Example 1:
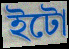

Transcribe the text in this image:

ইটো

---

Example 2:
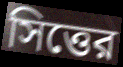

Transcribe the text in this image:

সিত্তের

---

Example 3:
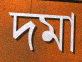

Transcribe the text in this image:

দমা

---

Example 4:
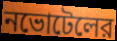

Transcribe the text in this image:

নভোটেলের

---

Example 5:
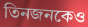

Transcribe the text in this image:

তিনজনকেও